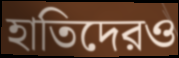
হাতিদেরও